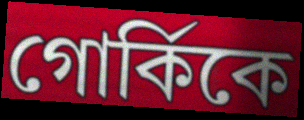
গোর্কিকে